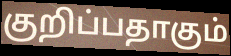
குறிப்பதாகும்